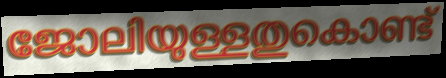
ജോലിയുള്ളതുകൊണ്ട്